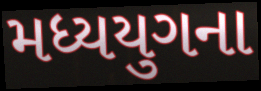
મધ્યયુગના